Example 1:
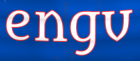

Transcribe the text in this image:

engu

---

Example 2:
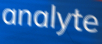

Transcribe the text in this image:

analyte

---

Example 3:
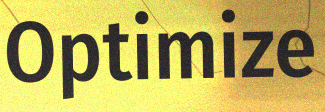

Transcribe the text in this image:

Optimize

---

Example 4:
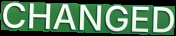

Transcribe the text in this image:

CHANGED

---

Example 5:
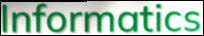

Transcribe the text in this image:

Informatics